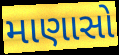
માણાસો